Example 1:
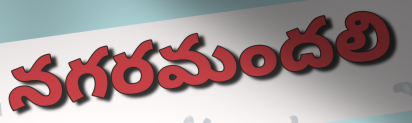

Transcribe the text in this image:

నగరమందలి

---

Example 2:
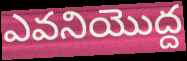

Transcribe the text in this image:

ఎవనియొద్ద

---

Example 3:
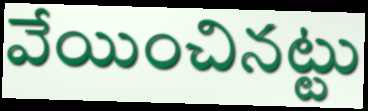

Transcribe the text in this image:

వేయించినట్టు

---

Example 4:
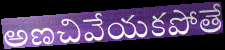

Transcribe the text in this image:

అణచివేయకపోతే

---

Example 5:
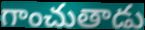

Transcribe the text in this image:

గాంచుతాడు